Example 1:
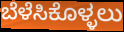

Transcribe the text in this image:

ಬೆಳೆಸಿಕೊಳ್ಳಲು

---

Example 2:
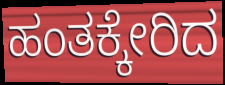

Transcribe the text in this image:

ಹಂತಕ್ಕೇರಿದ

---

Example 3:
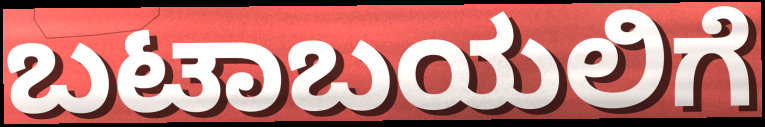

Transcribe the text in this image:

ಬಟಾಬಯಲಿಗೆ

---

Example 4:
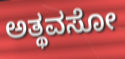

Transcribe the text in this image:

ಅತ್ಥವಸೋ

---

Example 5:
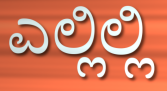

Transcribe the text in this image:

ಎಲ್ಲಿಲ್ಲಿ